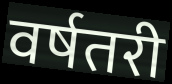
वर्षतरी